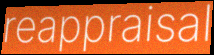
reappraisal